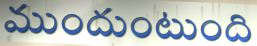
ముందుంటుంది